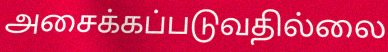
அசைக்கப்படுவதில்லை